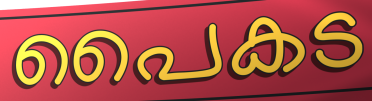
പൈകട